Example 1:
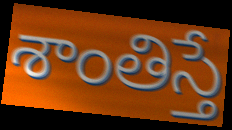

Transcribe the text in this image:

శాంతిస్తే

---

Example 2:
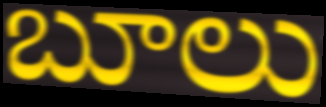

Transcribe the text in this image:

బూలు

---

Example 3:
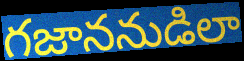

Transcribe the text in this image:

గజాననుడిలా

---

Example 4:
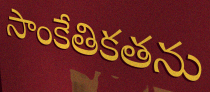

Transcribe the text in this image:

సాంకేతికతను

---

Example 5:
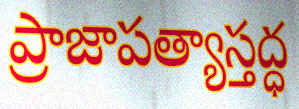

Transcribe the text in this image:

ప్రాజాపత్యాస్తద్ధ